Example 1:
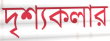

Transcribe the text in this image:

দৃশ্যকলার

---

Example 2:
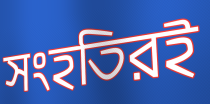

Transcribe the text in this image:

সংহতিরই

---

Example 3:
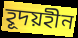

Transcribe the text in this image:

হূদয়হীন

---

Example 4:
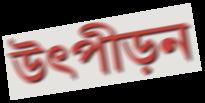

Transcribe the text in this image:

উৎপীড়ন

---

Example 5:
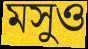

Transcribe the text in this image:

মসুও